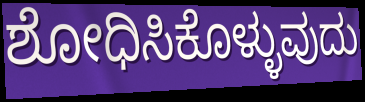
ಶೋಧಿಸಿಕೊಳ್ಳುವುದು